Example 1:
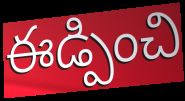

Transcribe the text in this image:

ఈడ్పించి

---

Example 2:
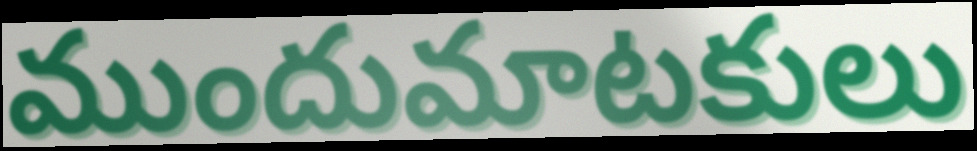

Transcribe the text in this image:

ముందుమాటకులు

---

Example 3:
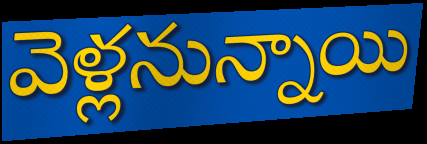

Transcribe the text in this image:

వెళ్లనున్నాయి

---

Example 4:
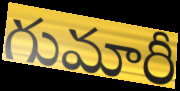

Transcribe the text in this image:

గుమారీ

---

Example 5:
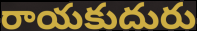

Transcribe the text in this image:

రాయకుదురు